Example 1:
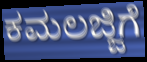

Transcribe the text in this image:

ಕಮಲಜ್ಜಿಗೆ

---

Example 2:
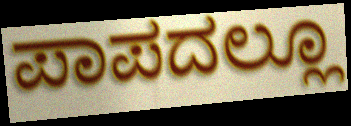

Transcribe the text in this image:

ಪಾಪದಲ್ಲೂ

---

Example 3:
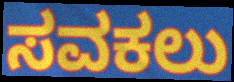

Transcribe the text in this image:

ಸವಕಲು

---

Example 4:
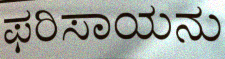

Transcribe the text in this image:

ಫರಿಸಾಯನು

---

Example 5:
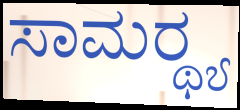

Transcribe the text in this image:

ಸಾಮರ್‍ಥ್ಯ